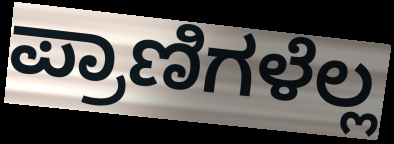
ಪ್ರಾಣಿಗಳೆಲ್ಲ